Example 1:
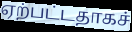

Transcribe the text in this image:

ஏற்பட்டதாகச்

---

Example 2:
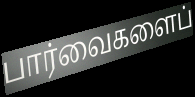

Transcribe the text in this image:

பார்வைகளைப்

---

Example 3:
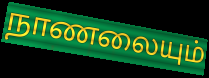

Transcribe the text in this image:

நாணலையும்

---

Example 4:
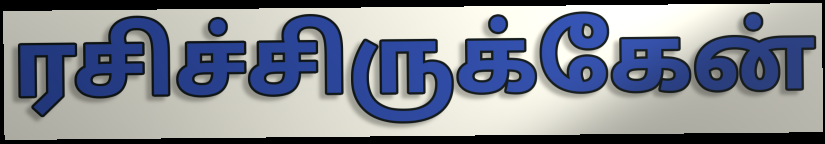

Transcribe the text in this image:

ரசிச்சிருக்கேன்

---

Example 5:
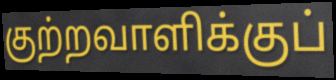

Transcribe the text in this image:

குற்றவாளிக்குப்